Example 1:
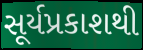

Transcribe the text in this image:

સૂર્યપ્રકાશથી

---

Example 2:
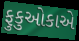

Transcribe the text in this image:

ફુકુઓકાએ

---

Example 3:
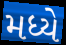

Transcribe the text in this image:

મધ્યે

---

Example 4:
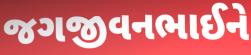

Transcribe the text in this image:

જગજીવનભાઈને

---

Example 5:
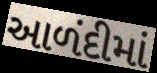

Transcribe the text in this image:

આળંદીમાં